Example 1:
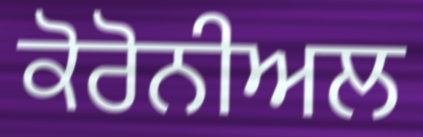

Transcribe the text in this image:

ਕੋਰੋਨੀਅਲ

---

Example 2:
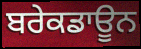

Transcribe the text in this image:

ਬਰੇਕਡਾਊਨ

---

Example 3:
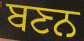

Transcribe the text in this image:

ਬਣਨ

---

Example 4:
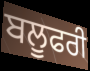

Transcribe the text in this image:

ਬਲੂਫਰੀ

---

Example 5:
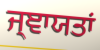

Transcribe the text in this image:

ਜ੍ਞਾਯਤਾਂ